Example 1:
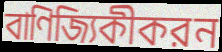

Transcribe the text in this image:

বাণিজ্যিকীকরন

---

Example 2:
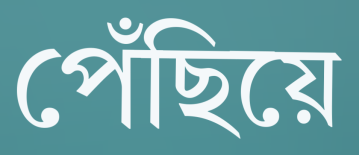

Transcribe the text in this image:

পেঁছিয়ে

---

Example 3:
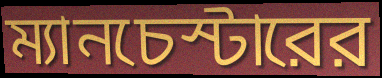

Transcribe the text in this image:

ম্যানচেস্টারের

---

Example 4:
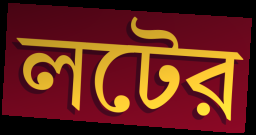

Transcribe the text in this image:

লটের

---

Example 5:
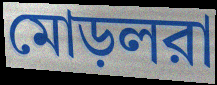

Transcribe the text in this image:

মোড়লরা